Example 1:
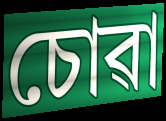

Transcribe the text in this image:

চোৱা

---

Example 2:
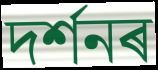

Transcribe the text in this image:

দৰ্শনৰ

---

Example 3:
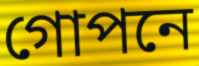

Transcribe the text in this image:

গোপনে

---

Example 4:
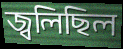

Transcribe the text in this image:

জ্বলিছিল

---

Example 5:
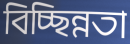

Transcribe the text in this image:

বিচ্ছিন্নতা